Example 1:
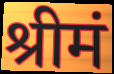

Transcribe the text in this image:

श्रीमं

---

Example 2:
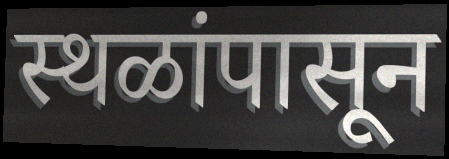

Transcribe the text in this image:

स्थळांपासून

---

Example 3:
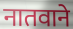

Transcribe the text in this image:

नातवाने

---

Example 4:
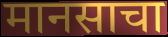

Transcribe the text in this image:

मानसाचा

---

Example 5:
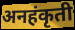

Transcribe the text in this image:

अनहंकृती